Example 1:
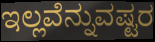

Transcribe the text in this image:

ಇಲ್ಲವೆನ್ನುವಷ್ಟರ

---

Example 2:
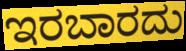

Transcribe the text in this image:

ಇರಬಾರದು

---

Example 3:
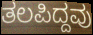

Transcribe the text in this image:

ತಲಪಿದ್ದವು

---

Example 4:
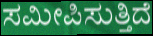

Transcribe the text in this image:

ಸಮೀಪಿಸುತ್ತಿದೆ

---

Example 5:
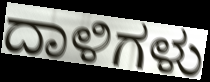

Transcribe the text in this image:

ದಾಳಿಗಳು